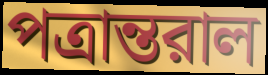
পত্রান্তরাল